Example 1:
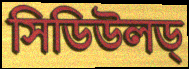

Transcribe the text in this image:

সিডিউলড্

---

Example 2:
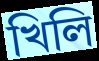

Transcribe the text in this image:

খিলি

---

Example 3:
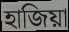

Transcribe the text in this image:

হাজিয়া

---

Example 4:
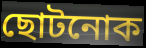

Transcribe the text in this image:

ছোটনোক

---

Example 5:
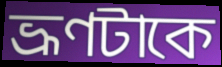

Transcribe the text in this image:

ভ্রূণটাকে